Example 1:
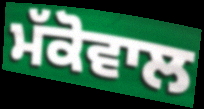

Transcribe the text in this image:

ਮੱਕੋਵਾਲ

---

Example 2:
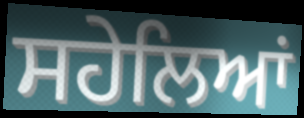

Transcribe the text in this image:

ਸਹੇਲਿਆਂ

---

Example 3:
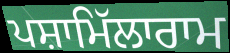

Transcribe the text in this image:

ਪਸ਼ਾਮਿੱਲਾਰਾਮ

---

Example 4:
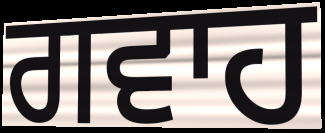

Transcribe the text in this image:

ਗਵਾਹ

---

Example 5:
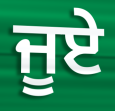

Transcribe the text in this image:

ਜੂਏ